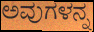
ಅವುಗಳನ್ನ